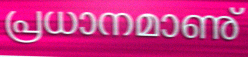
പ്രധാനമാണു്